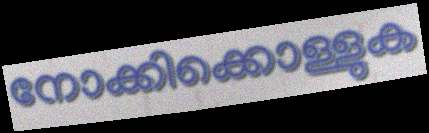
നോക്കിക്കൊള്ളുക